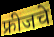
फ्रीजचे